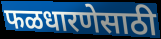
फळधारणेसाठी